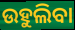
ଉହୁଲିବା